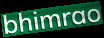
bhimrao